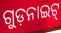
ଗୁଡ଼ନାଇଟ୍